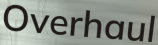
Overhaul